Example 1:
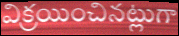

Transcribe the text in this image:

విక్రయించినట్లుగా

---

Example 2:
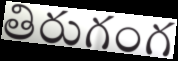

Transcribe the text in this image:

తిరుగంగ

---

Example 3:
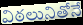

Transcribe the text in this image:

విఠలునితోనే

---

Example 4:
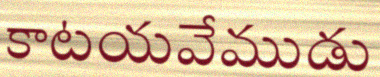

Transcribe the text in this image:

కాటయవేముడు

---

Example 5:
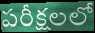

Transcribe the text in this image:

పరీక్షలలో